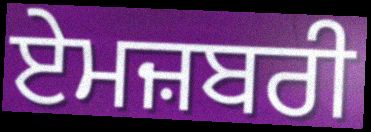
ਏਮਜ਼ਬਰੀ